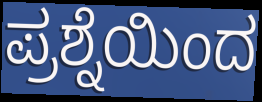
ಪ್ರಶ್ನೆಯಿಂದ